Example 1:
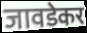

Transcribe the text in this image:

जावडेकर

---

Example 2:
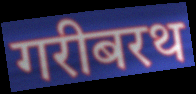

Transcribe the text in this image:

गरीबरथ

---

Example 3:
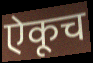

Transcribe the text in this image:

ऐकूच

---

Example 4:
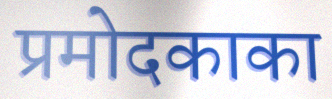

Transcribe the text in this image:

प्रमोदकाका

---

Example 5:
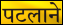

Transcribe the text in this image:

पटलाने